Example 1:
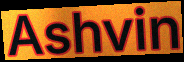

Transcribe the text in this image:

Ashvin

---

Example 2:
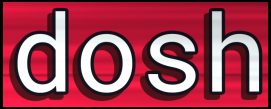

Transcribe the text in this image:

dosh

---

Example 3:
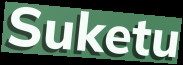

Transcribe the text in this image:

Suketu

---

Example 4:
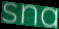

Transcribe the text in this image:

sna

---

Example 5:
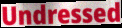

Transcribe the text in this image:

Undressed